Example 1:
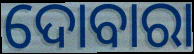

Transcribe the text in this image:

ଦୋବାରା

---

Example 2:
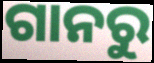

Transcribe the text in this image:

ଗାନରୁ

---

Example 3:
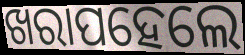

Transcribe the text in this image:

ଖରାପହେଲେ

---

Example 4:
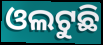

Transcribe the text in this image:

ଓଲଟୁଛି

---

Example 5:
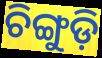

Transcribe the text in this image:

ଚିଙ୍ଗୁଡ଼ି